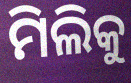
ମିଲିକୁ